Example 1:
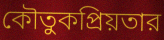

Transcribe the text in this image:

কৌতুকপ্রিয়তার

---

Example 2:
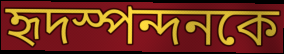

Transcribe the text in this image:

হৃদস্পন্দনকে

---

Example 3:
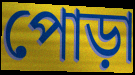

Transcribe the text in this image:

পোড়া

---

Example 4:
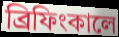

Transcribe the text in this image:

ব্রিফিংকালে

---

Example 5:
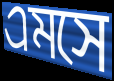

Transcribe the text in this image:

এমসে